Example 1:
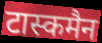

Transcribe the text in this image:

टास्कमैन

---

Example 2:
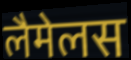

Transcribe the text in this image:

लैमेलस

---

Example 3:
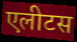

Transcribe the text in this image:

एलीटस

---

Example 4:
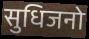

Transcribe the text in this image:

सुधिजनो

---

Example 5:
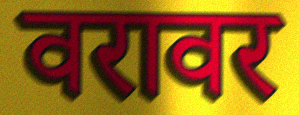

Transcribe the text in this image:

वरावर